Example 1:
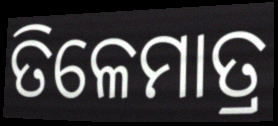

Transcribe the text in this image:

ତିଳେମାତ୍ର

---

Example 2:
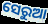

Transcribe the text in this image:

ସେରୁଆ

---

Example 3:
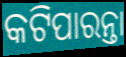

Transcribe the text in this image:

କଟିପାରନ୍ତା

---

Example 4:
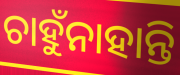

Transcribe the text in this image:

ଚାହୁଁନାହାନ୍ତି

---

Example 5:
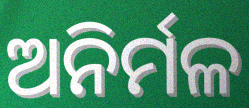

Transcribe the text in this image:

ଅନିର୍ମଳ